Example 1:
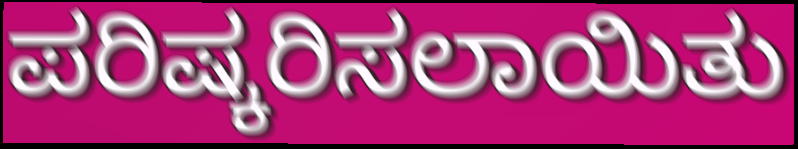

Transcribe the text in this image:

ಪರಿಷ್ಕರಿಸಲಾಯಿತು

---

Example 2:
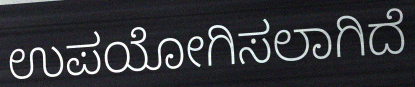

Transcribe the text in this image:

ಉಪಯೋಗಿಸಲಾಗಿದೆ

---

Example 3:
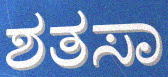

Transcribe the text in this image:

ಶತಸಾ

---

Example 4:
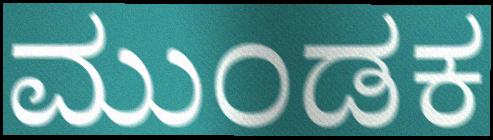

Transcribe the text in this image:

ಮುಂಡಕ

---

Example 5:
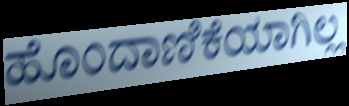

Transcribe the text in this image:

ಹೊಂದಾಣಿಕೆಯಾಗಿಲ್ಲ